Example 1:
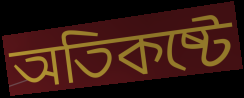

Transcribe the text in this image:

অতিকষ্টে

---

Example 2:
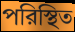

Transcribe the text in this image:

পরিস্থিত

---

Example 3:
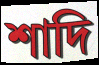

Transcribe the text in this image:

শাদি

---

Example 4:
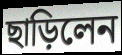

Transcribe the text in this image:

ছাড়িলেন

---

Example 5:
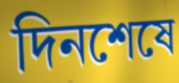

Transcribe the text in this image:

দিনশেষে